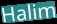
Halim